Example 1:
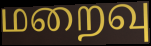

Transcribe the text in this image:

மறைவு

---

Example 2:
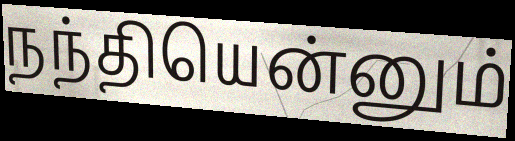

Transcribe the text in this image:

நந்தியென்னும்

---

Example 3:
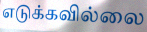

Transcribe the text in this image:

எடுக்கவில்லை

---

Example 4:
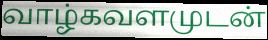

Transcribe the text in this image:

வாழ்கவளமுடன்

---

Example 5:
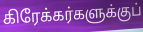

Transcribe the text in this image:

கிரேக்கர்களுக்குப்